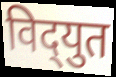
विद्‌युत